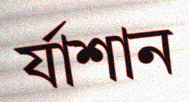
র্যাশান